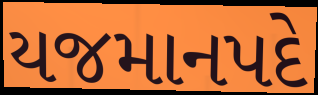
યજમાનપદે